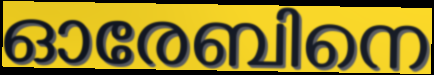
ഓരേബിനെ